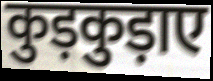
कुड़कुड़ाए